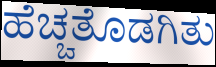
ಹೆಚ್ಚತೊಡಗಿತು